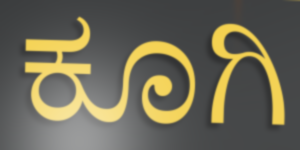
ಕೂಗಿ